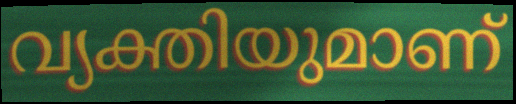
വ്യക്തിയുമാണ്